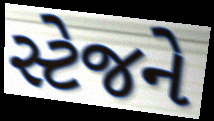
સ્ટેજને